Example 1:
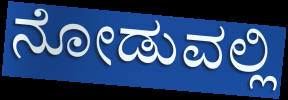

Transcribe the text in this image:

ನೋಡುವಲ್ಲಿ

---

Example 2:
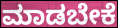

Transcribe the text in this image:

ಮಾಡಬೇಕೆ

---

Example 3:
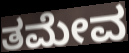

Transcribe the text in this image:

ತಮೇವ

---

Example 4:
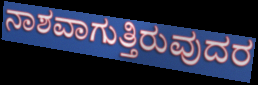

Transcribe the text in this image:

ನಾಶವಾಗುತ್ತಿರುವುದರ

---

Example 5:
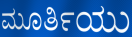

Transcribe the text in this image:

ಮೂರ್ತಿಯು